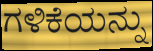
ಗಳಿಕೆಯನ್ನು